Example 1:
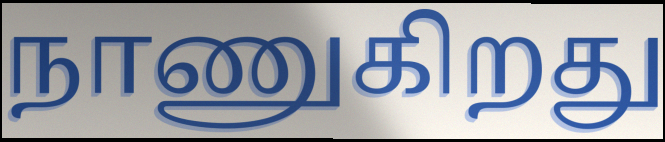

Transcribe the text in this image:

நாணுகிறது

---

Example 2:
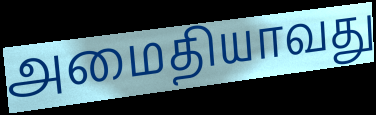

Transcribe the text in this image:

அமைதியாவது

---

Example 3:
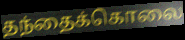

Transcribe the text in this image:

தந்தைக்கொலை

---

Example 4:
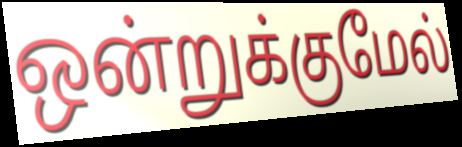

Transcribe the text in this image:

ஒன்றுக்குமேல்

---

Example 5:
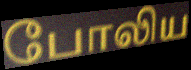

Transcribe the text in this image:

போலிய